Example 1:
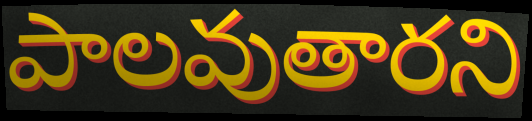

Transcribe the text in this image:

పాలవుతారని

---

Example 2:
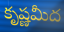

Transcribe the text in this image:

కృష్ణమీద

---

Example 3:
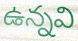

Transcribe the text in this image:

ఉన్నవి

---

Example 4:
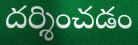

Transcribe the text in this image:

దర్శించడం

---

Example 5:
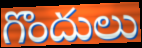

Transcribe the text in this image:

గొందులు